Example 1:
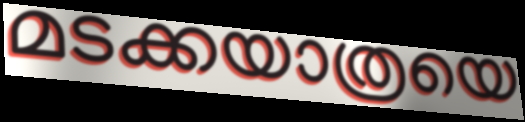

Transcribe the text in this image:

മടക്കയാത്രയെ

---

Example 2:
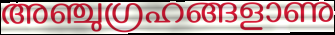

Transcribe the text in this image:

അഞ്ചുഗ്രഹങ്ങളാണു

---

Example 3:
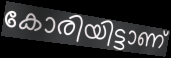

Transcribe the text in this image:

കോരിയിട്ടാണ്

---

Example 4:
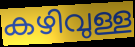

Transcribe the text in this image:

കഴിവുള്ള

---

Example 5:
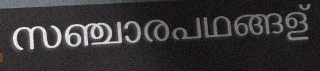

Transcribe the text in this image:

സഞ്ചാരപഥങ്ങള്